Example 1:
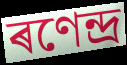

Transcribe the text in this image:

ৰণেন্দ্ৰ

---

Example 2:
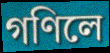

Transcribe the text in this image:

গণিলে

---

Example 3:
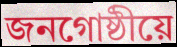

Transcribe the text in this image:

জনগোষ্ঠীয়ে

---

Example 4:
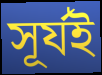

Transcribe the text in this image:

সূৰ্যই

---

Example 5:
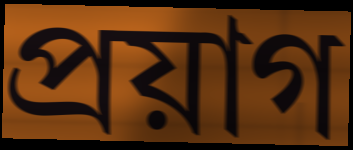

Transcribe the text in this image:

প্ৰয়াগ